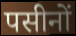
पसीनों